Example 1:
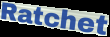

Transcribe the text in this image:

Ratchet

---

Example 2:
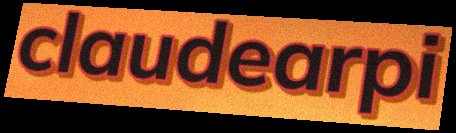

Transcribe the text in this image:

claudearpi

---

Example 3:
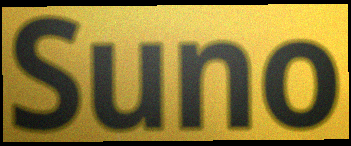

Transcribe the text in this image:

Suno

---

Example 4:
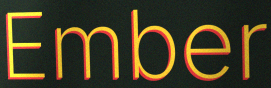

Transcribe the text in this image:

Ember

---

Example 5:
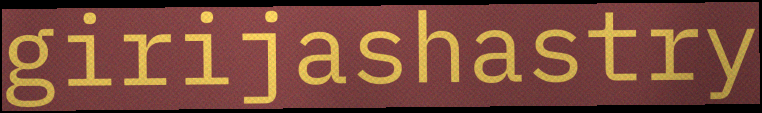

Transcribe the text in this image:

girijashastry